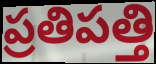
ప్రతిపత్తి